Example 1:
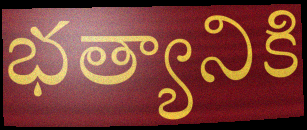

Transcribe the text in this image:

భత్యానికి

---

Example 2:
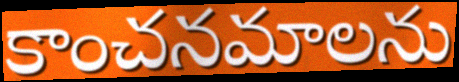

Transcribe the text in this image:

కాంచనమాలను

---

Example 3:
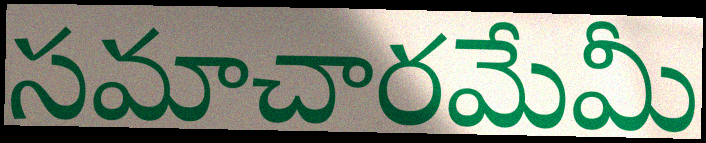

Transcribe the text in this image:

సమాచారమేమీ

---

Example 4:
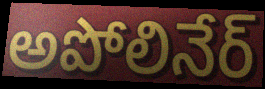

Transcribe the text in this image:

అపోలినేర్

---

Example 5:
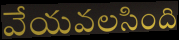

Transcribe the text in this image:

వేయవలసింది